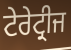
ਟੇਰੇਟ੍ਰੀਜ